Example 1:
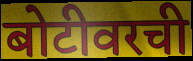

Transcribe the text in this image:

बोटीवरची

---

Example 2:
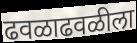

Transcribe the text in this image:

ढवळाढवळीला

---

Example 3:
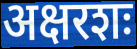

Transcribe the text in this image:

अक्षरशः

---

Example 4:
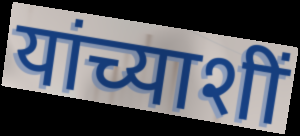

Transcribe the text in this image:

यांच्याशीं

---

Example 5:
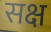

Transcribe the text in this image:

सक्ष